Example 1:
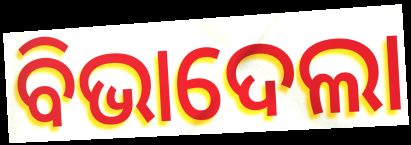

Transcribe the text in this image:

ବିଭାଦେଲା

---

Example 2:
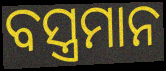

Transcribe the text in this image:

ବସ୍ତ୍ରମାନ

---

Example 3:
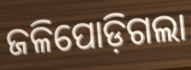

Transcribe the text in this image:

ଜଳିପୋଡ଼ିଗଲା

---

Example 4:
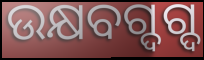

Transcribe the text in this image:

ଉକ୍ଷବଗ୍ଦଗ୍ଦ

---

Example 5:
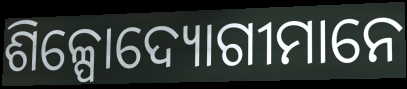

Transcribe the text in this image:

ଶିଳ୍ପୋଦ୍ୟୋଗୀମାନେ